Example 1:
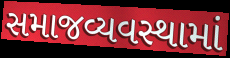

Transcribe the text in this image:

સમાજવ્યવસ્થામાં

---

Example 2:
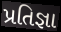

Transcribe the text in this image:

પ્રતિજ્ઞા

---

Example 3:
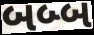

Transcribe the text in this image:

બબ્બ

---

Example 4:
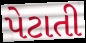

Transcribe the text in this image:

પેટાતી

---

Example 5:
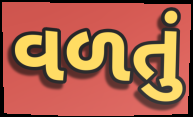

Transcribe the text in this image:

વળતું